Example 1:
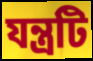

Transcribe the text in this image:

যন্ত্রটি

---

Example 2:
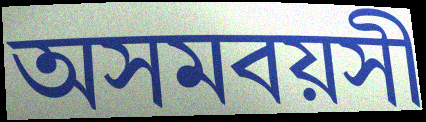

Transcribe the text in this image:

অসমবয়সী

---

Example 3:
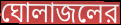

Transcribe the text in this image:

ঘোলাজলের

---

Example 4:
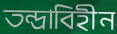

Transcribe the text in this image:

তন্দ্রাবিহীন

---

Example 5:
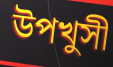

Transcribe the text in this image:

উপখুসী